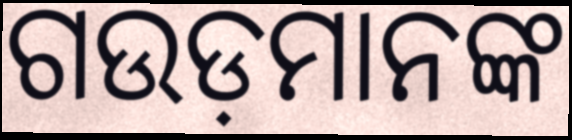
ଗଉଡ଼ମାନଙ୍କ